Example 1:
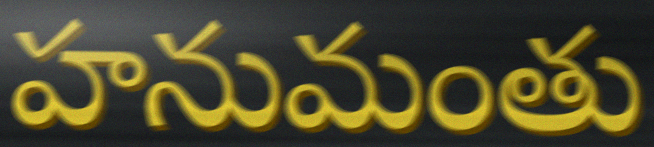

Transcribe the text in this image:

హనుమంతు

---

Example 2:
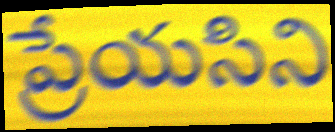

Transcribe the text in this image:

ప్రేయసిని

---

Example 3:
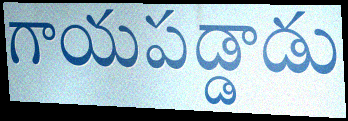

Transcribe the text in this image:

గాయపడ్డాడు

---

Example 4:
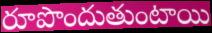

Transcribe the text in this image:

రూపొందుతుంటాయి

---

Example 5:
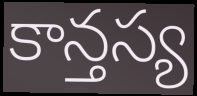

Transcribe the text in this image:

కాన్తస్య